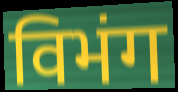
विभंग